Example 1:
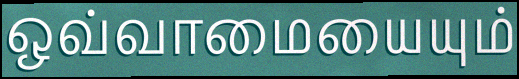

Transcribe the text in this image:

ஒவ்வாமையையும்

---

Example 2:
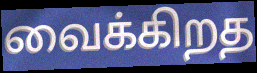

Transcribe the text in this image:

வைக்கிறத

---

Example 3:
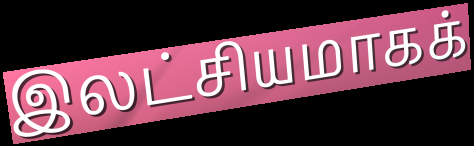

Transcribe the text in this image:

இலட்சியமாகக்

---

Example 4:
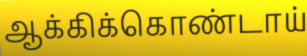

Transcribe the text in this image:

ஆக்கிக்கொண்டாய்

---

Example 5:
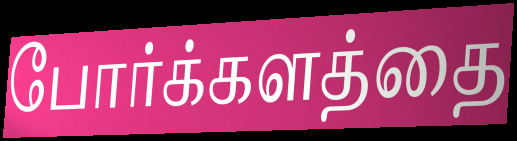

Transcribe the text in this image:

போர்க்களத்தை